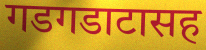
गडगडाटासह